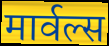
मार्वल्स